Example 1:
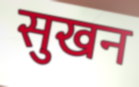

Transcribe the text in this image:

सुखन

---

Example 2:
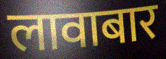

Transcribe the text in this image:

लावाबार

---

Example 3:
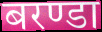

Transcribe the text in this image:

बरण्डा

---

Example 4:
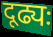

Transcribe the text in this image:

दूढ्यः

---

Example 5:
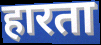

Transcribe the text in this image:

हारता